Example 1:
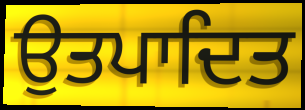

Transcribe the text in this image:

ਉਤਪਾਦਿਤ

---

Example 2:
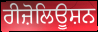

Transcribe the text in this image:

ਰੀਜ਼ੋਲਿਊਸ਼ਨ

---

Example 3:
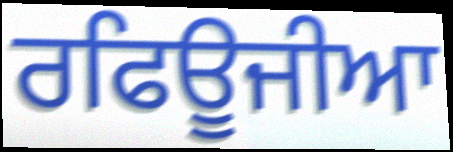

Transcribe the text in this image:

ਰਫਿਊਜੀਆ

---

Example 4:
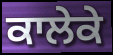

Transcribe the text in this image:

ਕਾਲੇਕੇ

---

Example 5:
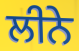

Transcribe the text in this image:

ਲੀਨੇ